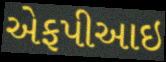
એફપીઆઇ